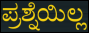
ಪ್ರಶ್ನೆಯಿಲ್ಲ